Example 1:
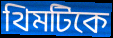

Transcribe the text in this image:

থিমটিকে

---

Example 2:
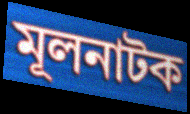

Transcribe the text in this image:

মূলনাটক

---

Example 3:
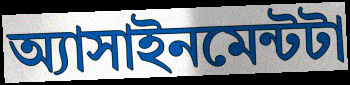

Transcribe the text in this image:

অ্যাসাইনমেন্টটা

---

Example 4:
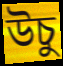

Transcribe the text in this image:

উচু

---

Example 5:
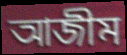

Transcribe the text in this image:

আজীম